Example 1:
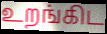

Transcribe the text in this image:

உறங்கிட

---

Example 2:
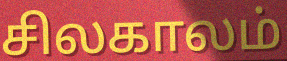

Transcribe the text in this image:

சிலகாலம்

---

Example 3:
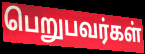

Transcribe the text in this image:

பெறுபவர்கள்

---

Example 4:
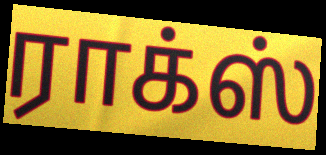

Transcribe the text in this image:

ராக்ஸ்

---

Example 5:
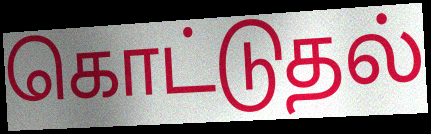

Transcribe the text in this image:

கொட்டுதல்